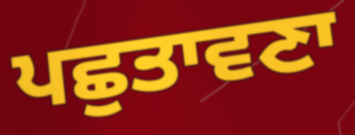
ਪਛੁਤਾਵਣਾ